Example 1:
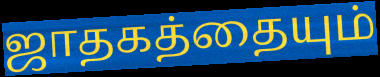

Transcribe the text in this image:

ஜாதகத்தையும்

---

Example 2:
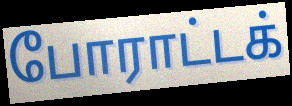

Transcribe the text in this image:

போராட்டக்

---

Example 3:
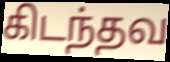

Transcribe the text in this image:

கிடந்தவ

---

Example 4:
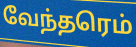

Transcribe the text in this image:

வேந்தரெம்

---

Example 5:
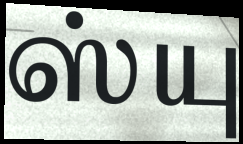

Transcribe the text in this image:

ஸ்யு